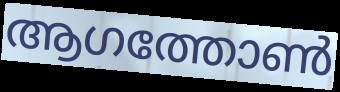
ആഗത്തോൺ